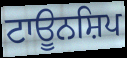
ਟਾਊਨਸ਼ਿਪ